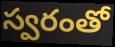
స్వరంతో